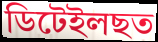
ডিটেইলছত